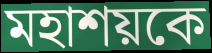
মহাশয়কে